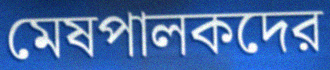
মেষপালকদের